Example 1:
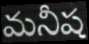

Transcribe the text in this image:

మనీష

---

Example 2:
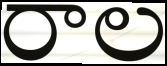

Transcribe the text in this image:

రాల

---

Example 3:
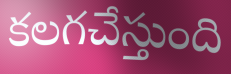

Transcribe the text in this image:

కలగచేస్తుంది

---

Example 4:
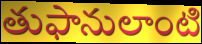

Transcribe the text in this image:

తుఫానులాంటి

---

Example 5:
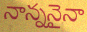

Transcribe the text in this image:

నాన్ననైనా